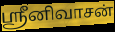
ஸ்ரீனிவாசன்